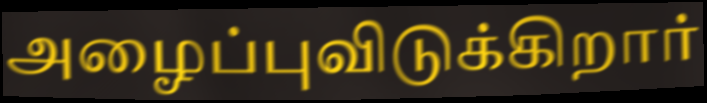
அழைப்புவிடுக்கிறார்